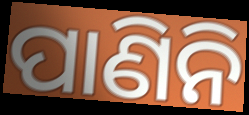
ପାଣିନି